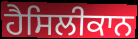
ਹੈਸਿਲੀਕਾਨ